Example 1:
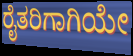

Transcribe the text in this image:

ರೈತರಿಗಾಗಿಯೇ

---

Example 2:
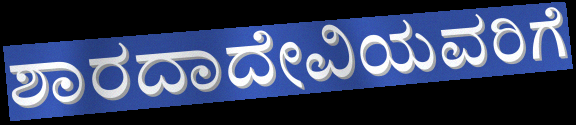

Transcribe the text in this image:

ಶಾರದಾದೇವಿಯವರಿಗೆ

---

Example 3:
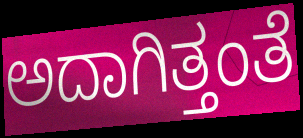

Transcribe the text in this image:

ಅದಾಗಿತ್ತಂತೆ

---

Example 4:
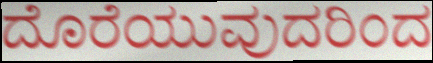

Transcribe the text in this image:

ದೊರೆಯುವುದರಿಂದ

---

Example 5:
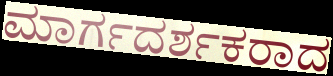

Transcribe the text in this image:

ಮಾರ್ಗದರ್ಶಕರಾದ